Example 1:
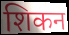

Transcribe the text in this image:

शिकन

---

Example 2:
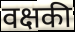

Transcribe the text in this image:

वक्षकी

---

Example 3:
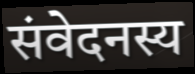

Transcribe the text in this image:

संवेदनस्य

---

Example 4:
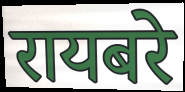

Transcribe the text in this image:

रायबरे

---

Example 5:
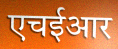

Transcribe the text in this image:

एचईआर